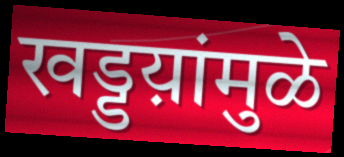
खड्डय़ांमुळे